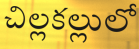
చిల్లకల్లులో